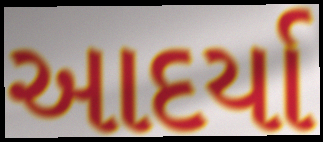
આદર્યા